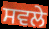
ਸਵਲੇ